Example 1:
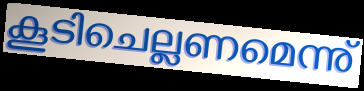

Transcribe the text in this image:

കൂടിചെല്ലണമെന്നു്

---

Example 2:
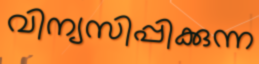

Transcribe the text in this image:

വിന്യസിപ്പിക്കുന്ന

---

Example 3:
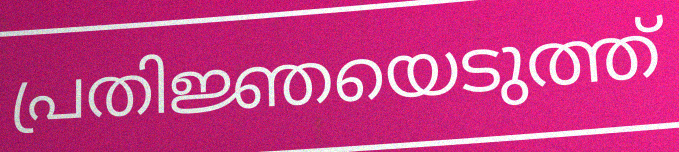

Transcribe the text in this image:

പ്രതിജ്ഞയെടുത്ത്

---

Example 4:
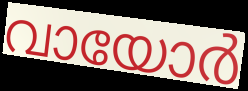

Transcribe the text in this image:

വായോർ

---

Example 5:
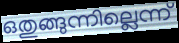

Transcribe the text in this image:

ഒതുങ്ങുന്നില്ലെന്ന്